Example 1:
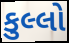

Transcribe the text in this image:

કુલ્લો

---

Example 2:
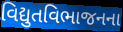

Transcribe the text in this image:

વિદ્યુતવિભાજનના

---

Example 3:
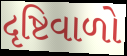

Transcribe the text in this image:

દૃષ્ટિવાળો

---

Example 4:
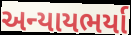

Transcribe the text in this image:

અન્યાયભર્યા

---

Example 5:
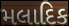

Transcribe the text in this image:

મલાદિક